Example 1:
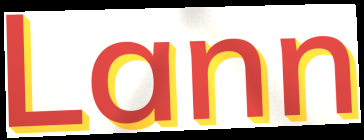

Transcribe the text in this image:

Lann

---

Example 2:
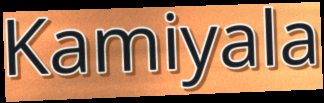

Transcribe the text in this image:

Kamiyala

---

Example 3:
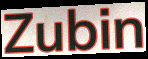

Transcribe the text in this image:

Zubin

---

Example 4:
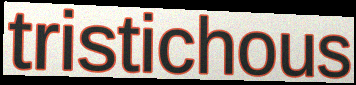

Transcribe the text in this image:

tristichous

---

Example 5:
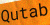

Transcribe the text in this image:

Qutab